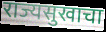
राज्यसुखाचा